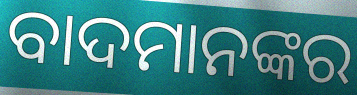
ବାଦମାନଙ୍କର